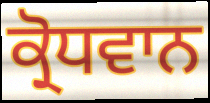
ਕ੍ਰੋਧਵਾਨ